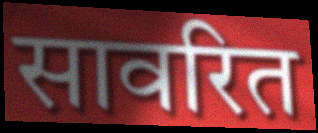
सावरित